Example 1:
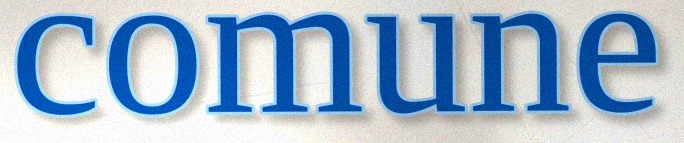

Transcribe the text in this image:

comune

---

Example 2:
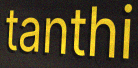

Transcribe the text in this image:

tanthi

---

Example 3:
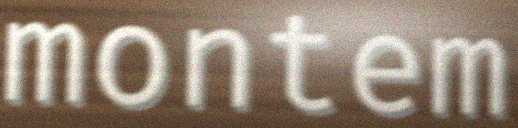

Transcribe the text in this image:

montem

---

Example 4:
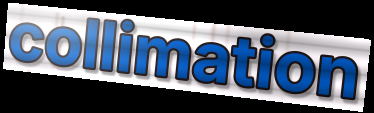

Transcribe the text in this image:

collimation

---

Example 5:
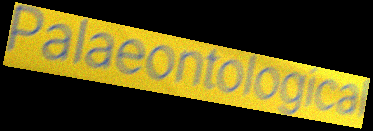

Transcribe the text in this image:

Palaeontological